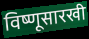
विष्णूसारखी